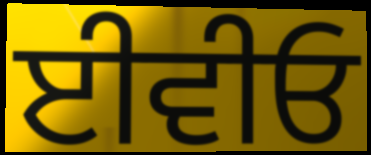
ਈਵੀਓ